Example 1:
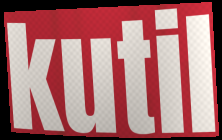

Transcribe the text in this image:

kutil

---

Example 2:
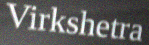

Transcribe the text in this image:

Virkshetra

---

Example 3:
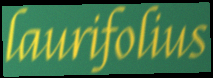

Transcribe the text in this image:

laurifolius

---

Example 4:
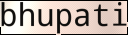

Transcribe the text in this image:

bhupati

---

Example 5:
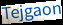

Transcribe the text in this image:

Tejgaon